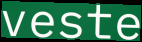
veste